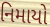
નિમાયો